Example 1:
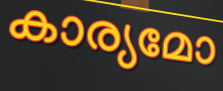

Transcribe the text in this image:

കാര്യമോ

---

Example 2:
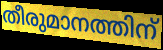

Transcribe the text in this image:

തീരുമാനത്തിന്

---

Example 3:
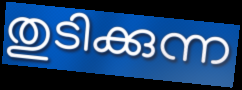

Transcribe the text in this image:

തുടിക്കുന്ന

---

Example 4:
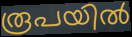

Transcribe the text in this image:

രൂപയിൽ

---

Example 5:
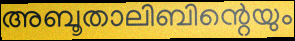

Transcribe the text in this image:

അബൂതാലിബിന്റെയും